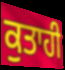
ਕੁਤਾਹੀ